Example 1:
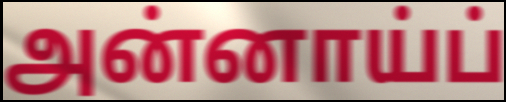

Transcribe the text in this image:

அன்னாய்ப்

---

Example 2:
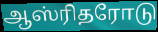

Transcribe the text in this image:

ஆஸ்ரிதரோடு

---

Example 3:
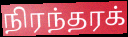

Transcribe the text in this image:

நிரந்தரக்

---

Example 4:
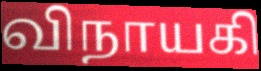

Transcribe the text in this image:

விநாயகி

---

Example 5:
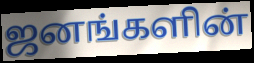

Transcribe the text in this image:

ஜனங்களின்